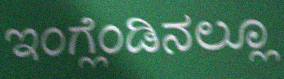
ಇಂಗ್ಲೆಂಡಿನಲ್ಲೂ